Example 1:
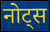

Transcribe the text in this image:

नोट्स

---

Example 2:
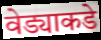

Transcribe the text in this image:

वेड्याकडे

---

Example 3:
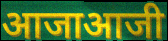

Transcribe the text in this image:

आजाआजी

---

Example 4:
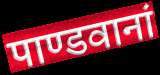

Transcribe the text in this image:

पाण्डवानां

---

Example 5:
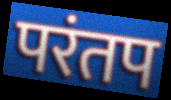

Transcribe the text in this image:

परंतप